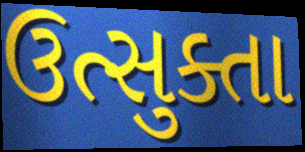
ઉત્સુક્તા